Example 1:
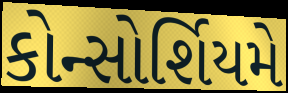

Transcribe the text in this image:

કોન્સોર્શિયમે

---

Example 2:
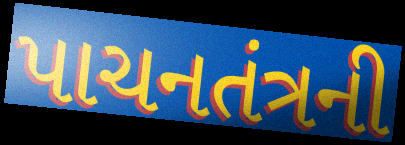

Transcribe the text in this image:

પાચનતંત્રની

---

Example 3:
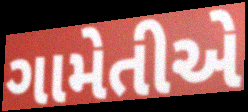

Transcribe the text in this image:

ગામેતીએ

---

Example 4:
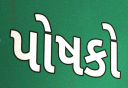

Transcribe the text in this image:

પોષકો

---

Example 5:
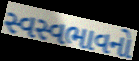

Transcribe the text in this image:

સ્વસ્વભાવનો